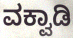
ವಕ್ವಾಡಿ